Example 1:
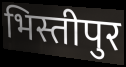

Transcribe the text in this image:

भिस्तीपुर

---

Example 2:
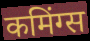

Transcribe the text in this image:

कमिंग्स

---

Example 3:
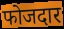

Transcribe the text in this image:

फोजदार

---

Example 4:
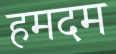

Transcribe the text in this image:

हमदम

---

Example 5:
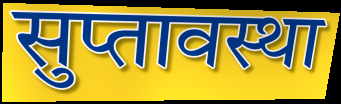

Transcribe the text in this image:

सुप्तावस्था